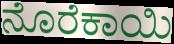
ನೊರೆಕಾಯಿ